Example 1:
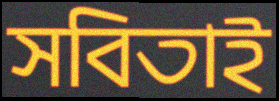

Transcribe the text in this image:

সবিতাই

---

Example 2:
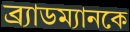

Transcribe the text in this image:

ব্র্যাডম্যানকে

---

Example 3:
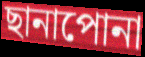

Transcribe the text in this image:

ছানাপোনা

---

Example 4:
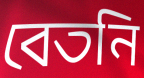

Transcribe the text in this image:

বেতনি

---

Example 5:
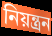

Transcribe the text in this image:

নিয়ন্ত্রন